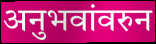
अनुभवांवरुन